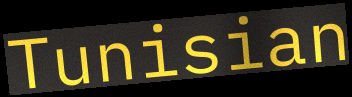
Tunisian